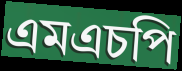
এমএচপি